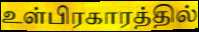
உள்பிரகாரத்தில்